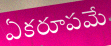
ఏకరూపమే